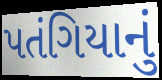
પતંગિયાનું